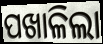
ପଖାଳିଲା